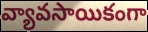
వ్యావసాయికంగా